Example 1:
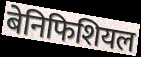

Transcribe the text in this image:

बेनिफिशियल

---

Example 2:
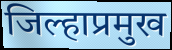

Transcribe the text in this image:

जिल्हाप्रमुख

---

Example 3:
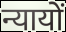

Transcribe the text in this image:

न्यायों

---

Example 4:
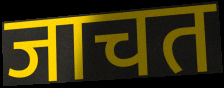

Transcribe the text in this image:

जाचत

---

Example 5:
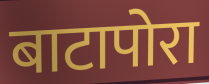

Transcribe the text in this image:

बाटापोरा